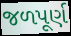
જળપૂર્ણ